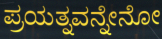
ಪ್ರಯತ್ನವನ್ನೇನೋ